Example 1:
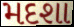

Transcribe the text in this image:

મદશા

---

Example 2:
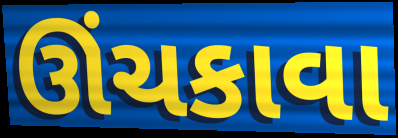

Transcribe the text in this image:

ઊંચકાવા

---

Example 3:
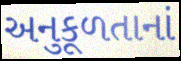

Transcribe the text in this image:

અનુકૂળતાનાં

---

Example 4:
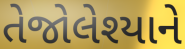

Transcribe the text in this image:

તેજોલેશ્યાને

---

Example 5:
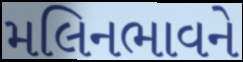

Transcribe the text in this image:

મલિનભાવને